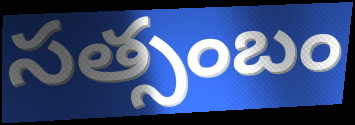
సత్సంబం